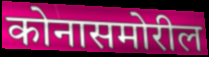
कोनासमोरील